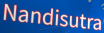
Nandisutra